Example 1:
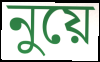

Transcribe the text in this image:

নুয়ে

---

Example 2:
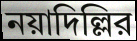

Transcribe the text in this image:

নয়াদিল্লির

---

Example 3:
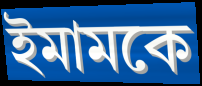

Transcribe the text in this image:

ইমামকে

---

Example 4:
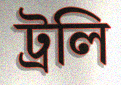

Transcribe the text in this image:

ট্রলি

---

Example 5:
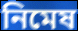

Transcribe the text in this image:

নিমেষ